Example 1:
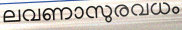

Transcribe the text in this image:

ലവണാസുരവധം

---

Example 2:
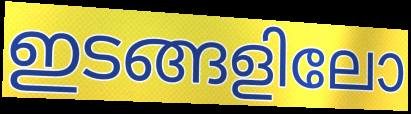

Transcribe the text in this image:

ഇടങ്ങളിലോ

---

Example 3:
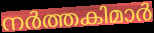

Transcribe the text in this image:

നർത്തകിമാർ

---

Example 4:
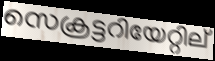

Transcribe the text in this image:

സെക്രട്ടറിയേറ്റില്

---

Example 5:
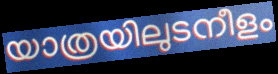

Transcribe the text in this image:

യാത്രയിലുടനീളം